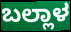
ಬಲ್ಲಾಳ